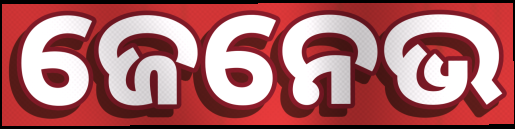
ଜେନେଭ